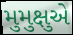
મુમુક્ષુએ